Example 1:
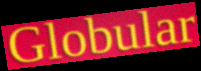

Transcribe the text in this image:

Globular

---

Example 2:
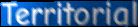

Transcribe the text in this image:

Territorial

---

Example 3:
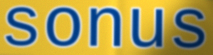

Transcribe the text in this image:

sonus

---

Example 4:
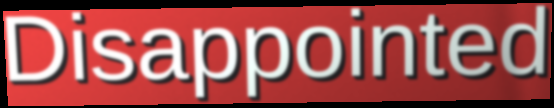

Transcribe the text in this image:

Disappointed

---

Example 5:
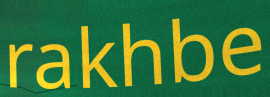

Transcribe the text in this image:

rakhbe